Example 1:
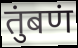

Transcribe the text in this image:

तुंबणं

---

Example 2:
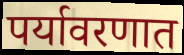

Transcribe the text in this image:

पर्यावरणात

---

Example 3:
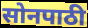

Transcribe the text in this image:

सोनपाठी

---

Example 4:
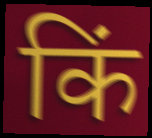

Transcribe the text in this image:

किं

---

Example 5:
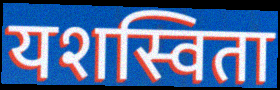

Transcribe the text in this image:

यशस्विता